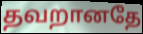
தவறானதே